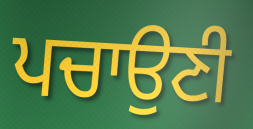
ਪਚਾਉਣੀ